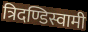
त्रिदण्डिस्वामी